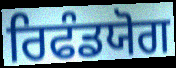
ਰਿਫੰਡਯੋਗ